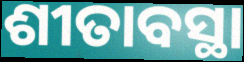
ଶୀତାବସ୍ଥା